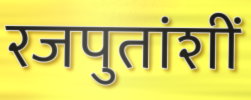
रजपुतांशीं